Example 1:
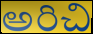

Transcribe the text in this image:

అరిచి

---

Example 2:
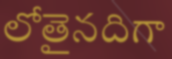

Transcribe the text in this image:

లోతైనదిగా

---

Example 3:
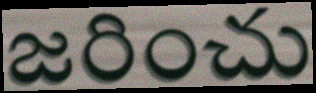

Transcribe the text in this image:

జరించు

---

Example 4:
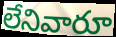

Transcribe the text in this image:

లేనివారూ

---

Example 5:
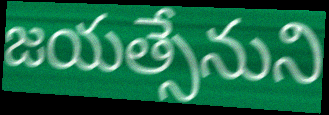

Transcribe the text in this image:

జయత్సేనుని